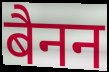
बैनन